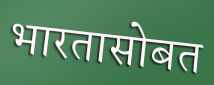
भारतासोबत